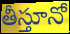
తీస్తూనో